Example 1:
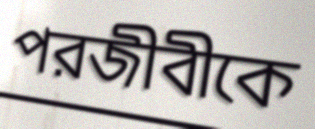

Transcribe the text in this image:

পরজীবীকে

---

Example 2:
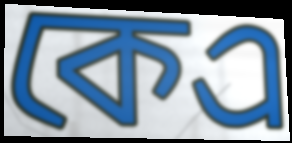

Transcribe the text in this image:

কেএ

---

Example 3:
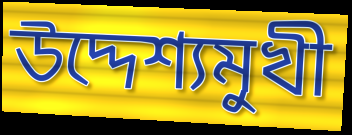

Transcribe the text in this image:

উদ্দেশ্যমুখী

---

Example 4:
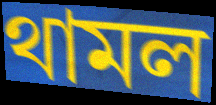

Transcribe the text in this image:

থামল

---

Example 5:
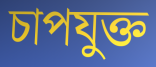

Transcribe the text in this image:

চাপযুক্ত